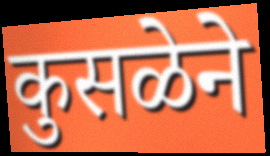
कुसळेने